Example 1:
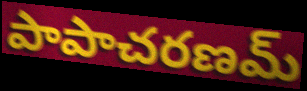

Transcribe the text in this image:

పాపాచరణమ్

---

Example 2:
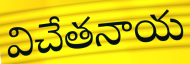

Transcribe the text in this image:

విచేతనాయ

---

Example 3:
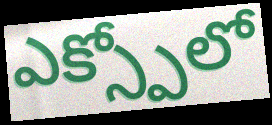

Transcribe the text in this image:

ఎక్స్పోలో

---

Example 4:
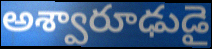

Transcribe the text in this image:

అశ్వారూఢుడై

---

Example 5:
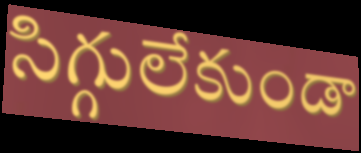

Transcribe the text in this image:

సిగ్గులేకుండా